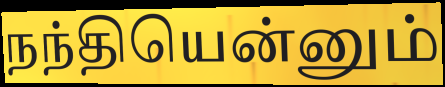
நந்தியென்னும்